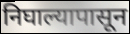
निघाल्यापासून